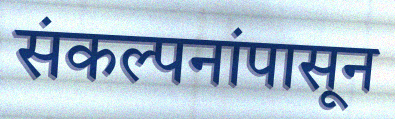
संकल्पनांपासून